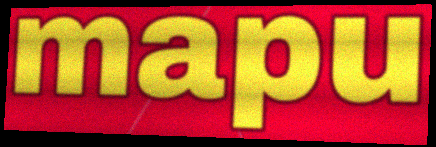
mapu